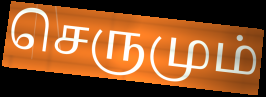
செருமும்